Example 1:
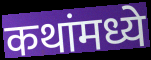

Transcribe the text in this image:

कथांमध्ये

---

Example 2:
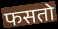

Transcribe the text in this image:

फसतो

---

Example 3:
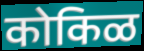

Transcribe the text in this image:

कोकिळ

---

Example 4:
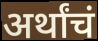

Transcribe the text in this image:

अर्थांचं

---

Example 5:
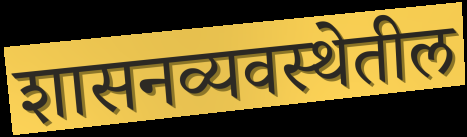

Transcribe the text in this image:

शासनव्यवस्थेतील